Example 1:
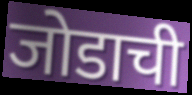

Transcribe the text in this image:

जोडाची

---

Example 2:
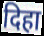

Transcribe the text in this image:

दिहा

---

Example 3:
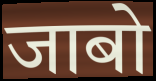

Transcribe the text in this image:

जाबो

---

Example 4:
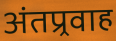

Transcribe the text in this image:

अंतप्र्रवाह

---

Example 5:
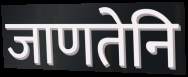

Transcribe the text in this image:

जाणतेनि